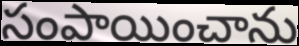
సంపాయించాను